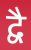
द्वै